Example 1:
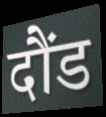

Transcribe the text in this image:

दौंड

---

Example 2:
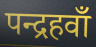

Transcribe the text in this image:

पन्द्रहवाँ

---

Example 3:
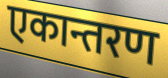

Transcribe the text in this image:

एकान्तरण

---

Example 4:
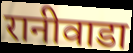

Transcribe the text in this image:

रानीवाडा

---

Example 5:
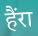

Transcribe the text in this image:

हैंरा